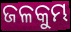
ଜଳକୁମ୍ଭ